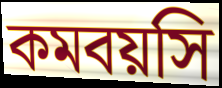
কমবয়সি